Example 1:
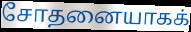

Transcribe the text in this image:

சோதனையாகக்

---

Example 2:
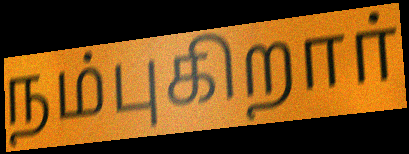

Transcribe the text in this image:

நம்புகிறார்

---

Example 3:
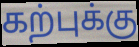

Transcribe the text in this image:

கற்புக்கு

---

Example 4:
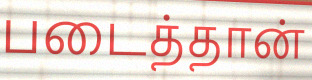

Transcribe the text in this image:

படைத்தான்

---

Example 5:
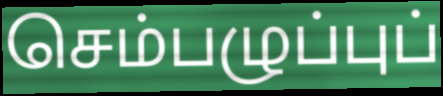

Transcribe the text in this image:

செம்பழுப்புப்